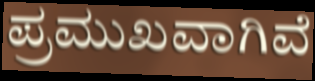
ಪ್ರಮುಖವಾಗಿವೆ